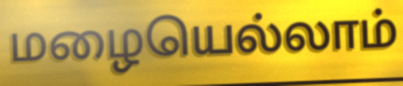
மழையெல்லாம்